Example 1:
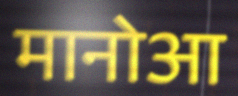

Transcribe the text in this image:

मानोआ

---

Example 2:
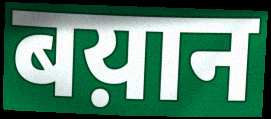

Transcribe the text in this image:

बय़ान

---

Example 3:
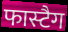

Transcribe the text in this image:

फास्‍टैग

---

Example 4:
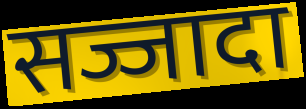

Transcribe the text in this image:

सज्जादा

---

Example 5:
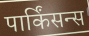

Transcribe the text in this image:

पार्किंसन्स